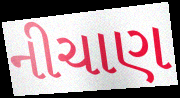
નીચાણ